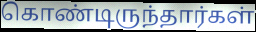
கொண்டிருந்தார்கள்